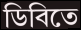
ডিবিতে